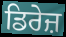
ਡਿਰੇਜ਼